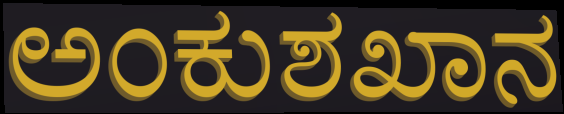
ಅಂಕುಶಖಾನ